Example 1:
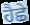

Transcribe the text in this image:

ਹੈਛੇ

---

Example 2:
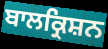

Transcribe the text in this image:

ਬਾਲਕ੍ਰਿਸ਼ਨ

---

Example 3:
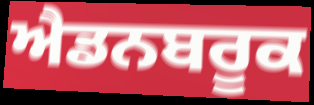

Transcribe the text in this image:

ਐਡਨਬਰੂਕ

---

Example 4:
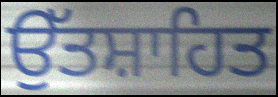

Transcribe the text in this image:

ਉੱਤਸ਼ਾਹਿਤ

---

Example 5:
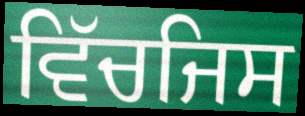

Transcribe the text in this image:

ਵਿੱਚਜਿਸ